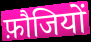
फ़ौजियों